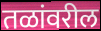
तळांवरील